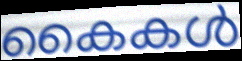
കൈകൾ